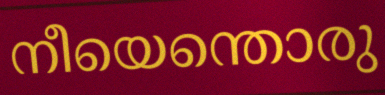
നീയെന്തൊരു